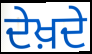
ਦੇਖ਼ਦੇ